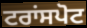
ਟਰਾਂਸਪੋਟ